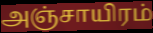
அஞ்சாயிரம்